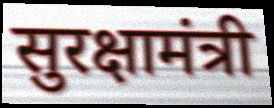
सुरक्षामंत्री